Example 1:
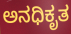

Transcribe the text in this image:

ಅನಧಿಕೃತ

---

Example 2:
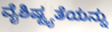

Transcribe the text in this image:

ವೈಶಿಷ್ಟ್ಯತೆಯನ್ನು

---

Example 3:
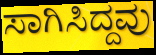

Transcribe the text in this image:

ಸಾಗಿಸಿದ್ದವು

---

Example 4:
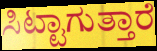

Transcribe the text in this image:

ಸಿಟ್ಟಾಗುತ್ತಾರೆ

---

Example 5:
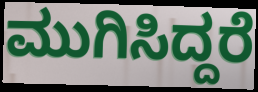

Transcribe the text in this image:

ಮುಗಿಸಿದ್ದರೆ